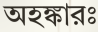
অহঙ্কারঃ